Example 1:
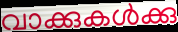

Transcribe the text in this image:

വാക്കുകൾക്കു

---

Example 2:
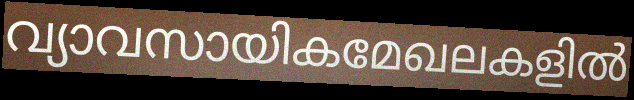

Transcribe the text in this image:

വ്യാവസായികമേഖലകളിൽ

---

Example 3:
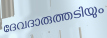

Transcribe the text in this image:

ദേവദാരുത്തടിയും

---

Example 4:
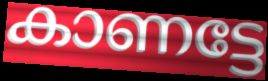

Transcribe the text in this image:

കാണട്ടേ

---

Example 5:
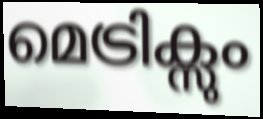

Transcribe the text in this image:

മെട്രിക്സും